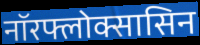
नॉरफ्लोक्सासिन